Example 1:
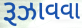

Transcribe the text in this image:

રૂઝાવવા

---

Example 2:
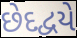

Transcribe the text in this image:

છેદદ્વયે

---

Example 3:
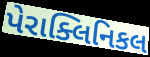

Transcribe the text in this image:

પેરાક્લિનિકલ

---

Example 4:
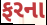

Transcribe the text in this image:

ફરના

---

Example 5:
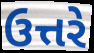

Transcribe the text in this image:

ઉત્તરે